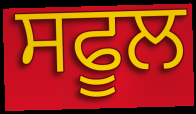
ਸਫੂਲ